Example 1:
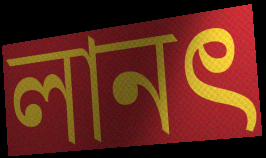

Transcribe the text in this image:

লানৎ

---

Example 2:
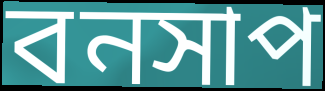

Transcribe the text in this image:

বনসাপ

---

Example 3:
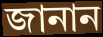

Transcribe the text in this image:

জানান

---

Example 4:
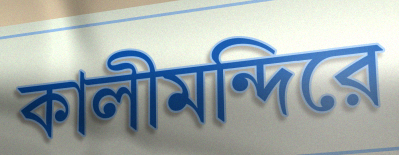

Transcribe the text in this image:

কালীমন্দিরে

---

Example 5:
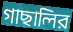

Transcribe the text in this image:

গাছালির